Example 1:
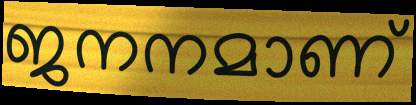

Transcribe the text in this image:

ജനനമാണ്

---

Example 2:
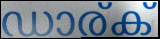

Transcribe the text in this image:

ഡാര്ക്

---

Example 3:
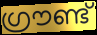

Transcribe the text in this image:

ഗ്രൗണ്ട്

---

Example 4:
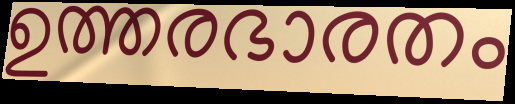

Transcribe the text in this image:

ഉത്തരഭാരതം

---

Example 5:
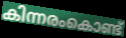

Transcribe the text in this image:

കിന്നരംകൊണ്ട്